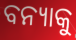
ବନ୍ୟାକୁ